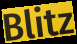
Blitz